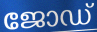
ജോഡ്